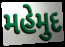
મહેમુદ